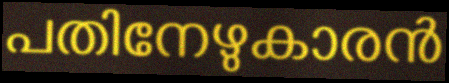
പതിനേഴുകാരൻ